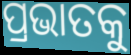
ପ୍ରଭାତକୁ